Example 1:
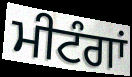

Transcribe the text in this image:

ਮੀਟੰਗਾਂ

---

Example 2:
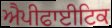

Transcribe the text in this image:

ਐਪੀਫਾਈਟਿਕ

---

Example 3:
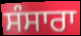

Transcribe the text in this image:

ਸੰਸਾਰਾ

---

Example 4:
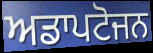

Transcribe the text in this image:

ਅਡਾਪਟੋਜਨ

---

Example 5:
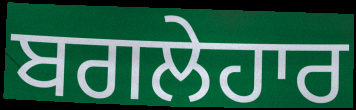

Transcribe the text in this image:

ਬਗਲੇਹਾਰ